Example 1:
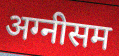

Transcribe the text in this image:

अग्नीसम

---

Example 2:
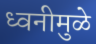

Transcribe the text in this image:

ध्वनीमुळे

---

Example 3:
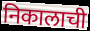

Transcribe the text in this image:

निकालाची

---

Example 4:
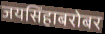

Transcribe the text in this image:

जयसिंहाबरोबर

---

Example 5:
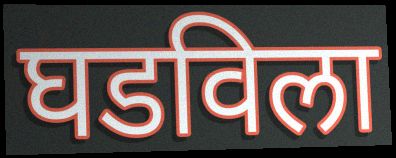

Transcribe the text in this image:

घडविला